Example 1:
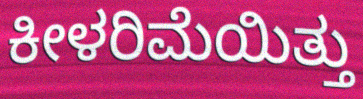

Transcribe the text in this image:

ಕೀಳರಿಮೆಯಿತ್ತು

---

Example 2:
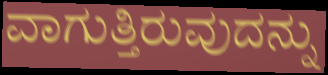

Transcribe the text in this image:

ವಾಗುತ್ತಿರುವುದನ್ನು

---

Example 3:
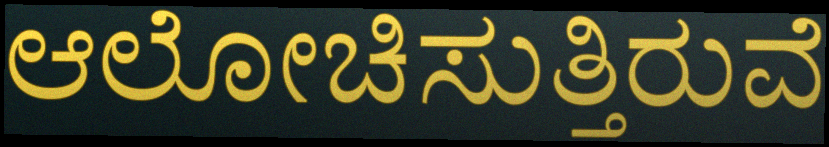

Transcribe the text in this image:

ಆಲೋಚಿಸುತ್ತಿರುವೆ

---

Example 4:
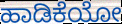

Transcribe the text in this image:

ಹಾಡಿಕೆಯೋ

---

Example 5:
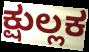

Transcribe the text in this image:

ಕ್ಷುಲ್ಲಕ